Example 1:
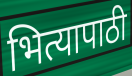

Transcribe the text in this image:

भित्यापाठी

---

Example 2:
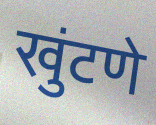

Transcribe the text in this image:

खुंटणे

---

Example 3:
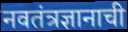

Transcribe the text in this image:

नवतंत्रज्ञानाची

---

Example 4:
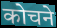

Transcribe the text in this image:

कोचने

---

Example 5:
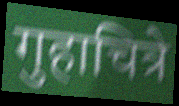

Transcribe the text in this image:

गुहाचित्रे